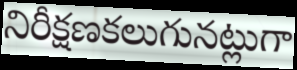
నిరీక్షణకలుగునట్లుగా